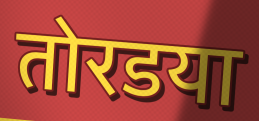
तोरडया